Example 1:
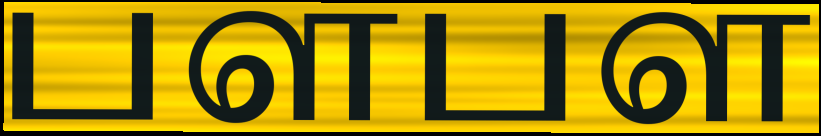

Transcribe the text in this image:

பளபள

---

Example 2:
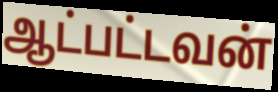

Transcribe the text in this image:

ஆட்பட்டவன்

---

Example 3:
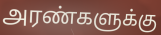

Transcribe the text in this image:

அரண்களுக்கு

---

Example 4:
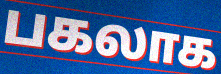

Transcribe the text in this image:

பகலாக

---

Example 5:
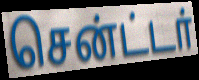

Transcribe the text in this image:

சென்ட்டர்